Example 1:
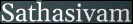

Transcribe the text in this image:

Sathasivam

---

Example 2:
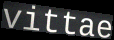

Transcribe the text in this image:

vittae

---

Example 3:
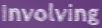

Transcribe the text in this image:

Involving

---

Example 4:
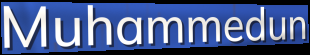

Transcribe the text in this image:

Muhammedun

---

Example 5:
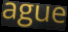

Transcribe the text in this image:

ague